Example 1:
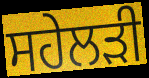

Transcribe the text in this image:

ਸਹੇਲੜੀ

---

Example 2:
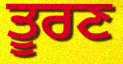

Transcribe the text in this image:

ਤੂਰਣ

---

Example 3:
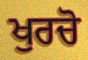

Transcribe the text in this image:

ਖੁਰਚੋ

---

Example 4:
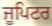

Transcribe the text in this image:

ਜੂਪਿਟਰ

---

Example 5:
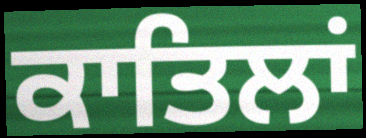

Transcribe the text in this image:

ਕਾਤਿਲਾਂ